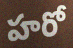
హరో